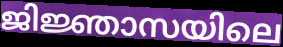
ജിജ്ഞാസയിലെ